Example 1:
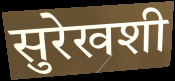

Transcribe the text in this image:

सुरेखशी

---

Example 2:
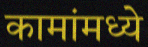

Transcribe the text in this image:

कामांमध्ये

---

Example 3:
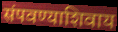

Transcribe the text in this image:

संपवण्याशिवाय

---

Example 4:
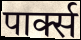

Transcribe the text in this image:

पार्क्स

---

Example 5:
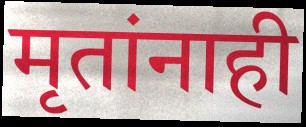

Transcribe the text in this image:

मृतांनाही